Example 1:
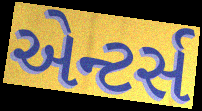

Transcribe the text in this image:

એન્ટર્સ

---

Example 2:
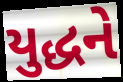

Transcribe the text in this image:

યુદ્ધને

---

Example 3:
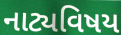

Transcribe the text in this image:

નાટ્યવિષય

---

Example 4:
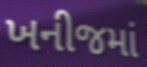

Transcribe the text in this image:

ખનીજમાં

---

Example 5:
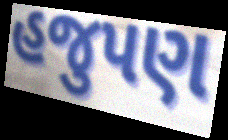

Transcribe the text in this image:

હજુપણ